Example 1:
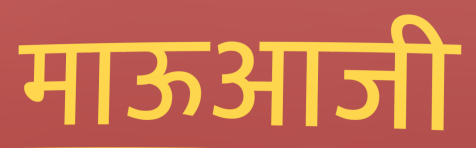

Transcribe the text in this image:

माऊआजी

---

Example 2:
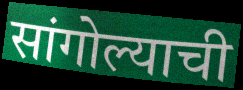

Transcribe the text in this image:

सांगोल्याची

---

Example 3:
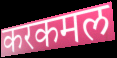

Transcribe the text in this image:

करकमल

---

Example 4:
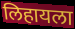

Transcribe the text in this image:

लिहायला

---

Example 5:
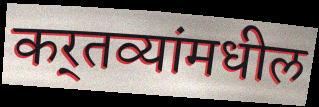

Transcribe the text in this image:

कर्तव्यांमधील